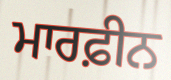
ਮਾਰਫ਼ੀਨ